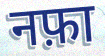
नफ़ा